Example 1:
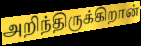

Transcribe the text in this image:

அறிந்திருக்கிறான்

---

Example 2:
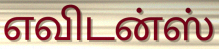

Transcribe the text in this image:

எவிடன்ஸ்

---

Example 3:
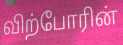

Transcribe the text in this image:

விற்போரின்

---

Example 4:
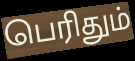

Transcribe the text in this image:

பெரிதும்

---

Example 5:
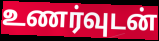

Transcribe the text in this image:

உணர்வுடன்